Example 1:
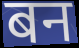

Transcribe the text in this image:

बन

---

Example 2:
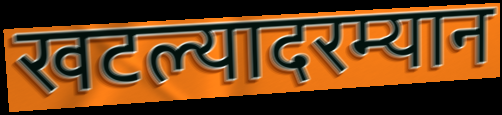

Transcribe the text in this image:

खटल्यादरम्यान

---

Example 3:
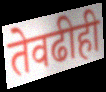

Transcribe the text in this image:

तेवढीही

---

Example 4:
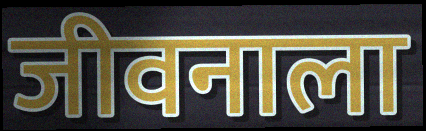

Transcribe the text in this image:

जीवनाला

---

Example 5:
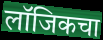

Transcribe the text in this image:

लॉजिकचा